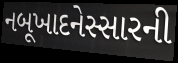
નબૂખાદનેસ્સારની